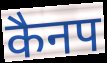
कैनप